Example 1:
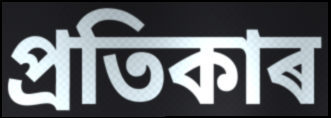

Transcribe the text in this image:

প্ৰতিকাৰ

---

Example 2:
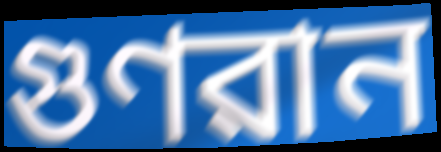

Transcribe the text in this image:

গুণৱান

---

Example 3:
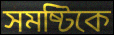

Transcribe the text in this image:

সমষ্টিকে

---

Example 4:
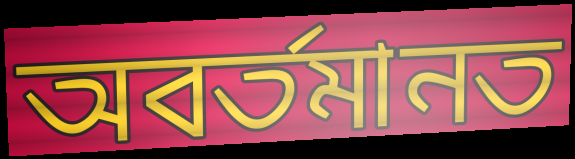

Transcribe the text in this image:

অবৰ্তমানত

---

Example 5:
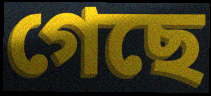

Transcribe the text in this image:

গেছে